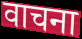
वाचना